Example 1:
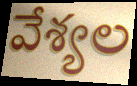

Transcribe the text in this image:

వేశ్యల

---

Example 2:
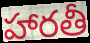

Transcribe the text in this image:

హారతీ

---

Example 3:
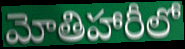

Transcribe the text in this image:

మోతిహారీలో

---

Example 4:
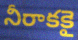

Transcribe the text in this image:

నీరాకకై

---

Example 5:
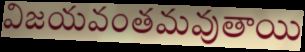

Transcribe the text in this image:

విజయవంతమవుతాయి